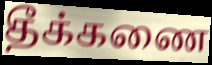
தீக்கணை